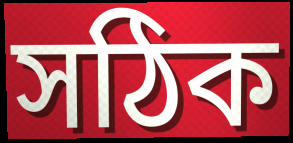
সঠিক